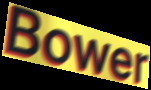
Bower